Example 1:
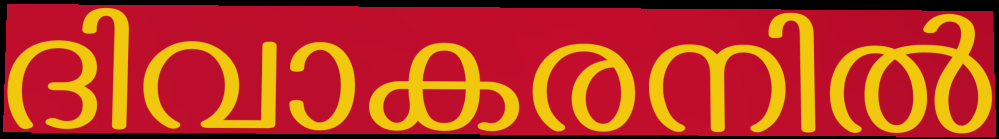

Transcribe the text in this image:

ദിവാകരനിൽ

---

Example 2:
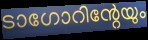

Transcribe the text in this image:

ടാഗോറിന്റേയും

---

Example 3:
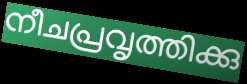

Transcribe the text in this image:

നീചപ്രവൃത്തിക്കു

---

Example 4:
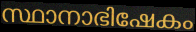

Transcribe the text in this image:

സ്ഥാനാഭിഷേകം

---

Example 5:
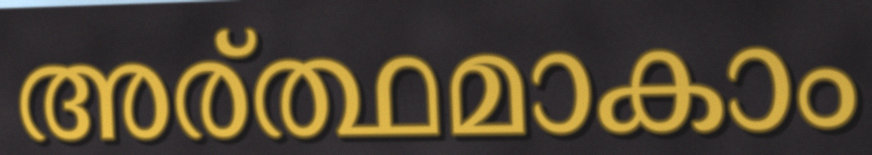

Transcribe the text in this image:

അര്ത്ഥമാകാം